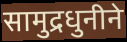
सामुद्रधुनीने